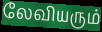
லேவியரும்